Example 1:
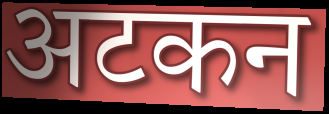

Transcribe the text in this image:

अटकन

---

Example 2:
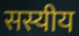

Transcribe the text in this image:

सस्यीय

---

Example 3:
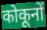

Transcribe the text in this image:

कोकूनों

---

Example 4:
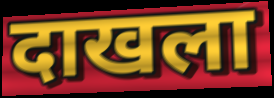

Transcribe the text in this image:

दाखला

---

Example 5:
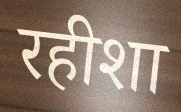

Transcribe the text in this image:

रहीशा